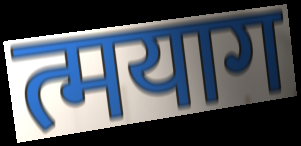
त्मयाग